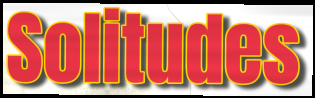
Solitudes